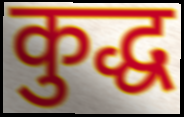
कुद्ध